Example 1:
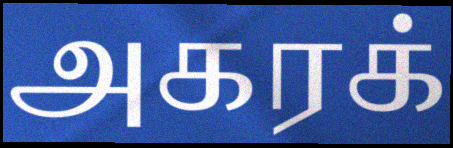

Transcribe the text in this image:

அகரக்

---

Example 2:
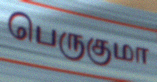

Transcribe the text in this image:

பெருகுமா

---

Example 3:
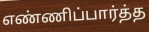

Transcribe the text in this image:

எண்ணிப்பார்த்த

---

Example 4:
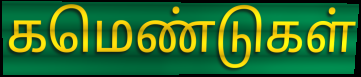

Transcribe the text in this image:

கமெண்டுகள்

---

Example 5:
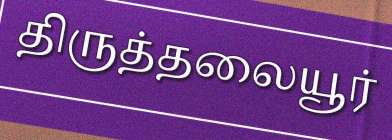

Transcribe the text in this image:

திருத்தலையூர்